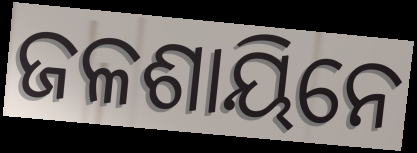
ଜଳଶାୟିନେ